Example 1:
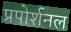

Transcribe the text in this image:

प्रपोर्शनल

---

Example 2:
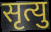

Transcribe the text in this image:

सृत्यु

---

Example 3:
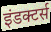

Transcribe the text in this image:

इंडक्टर्स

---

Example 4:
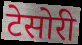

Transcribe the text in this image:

टेसोरी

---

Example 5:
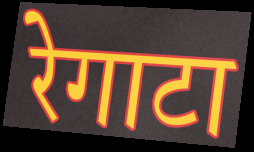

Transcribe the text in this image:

रेगाटा